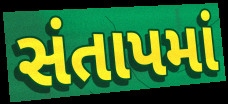
સંતાપમાં